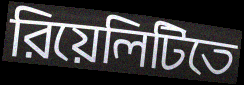
রিয়েলিটিতে